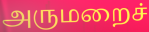
அருமறைச்